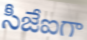
సీజేఐగా